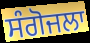
ਸੰਗੋਜਲਾ